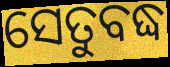
ସେତୁବଦ୍ଧ